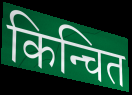
किन्चित